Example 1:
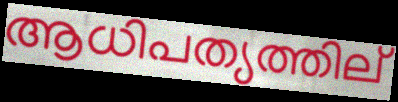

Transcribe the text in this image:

ആധിപത്യത്തില്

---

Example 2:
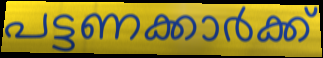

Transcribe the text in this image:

പട്ടണക്കാർക്ക്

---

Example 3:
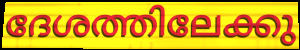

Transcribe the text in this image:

ദേശത്തിലേക്കു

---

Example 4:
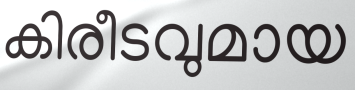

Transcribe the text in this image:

കിരീടവുമായ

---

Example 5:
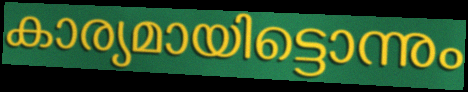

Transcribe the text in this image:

കാര്യമായിട്ടൊന്നും